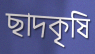
ছাদকৃষি